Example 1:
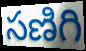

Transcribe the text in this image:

సణిగి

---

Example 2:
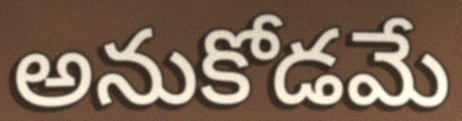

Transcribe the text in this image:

అనుకోడమే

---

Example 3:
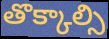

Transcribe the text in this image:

తొక్కాల్సి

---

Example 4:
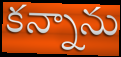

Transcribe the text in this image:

కన్నాను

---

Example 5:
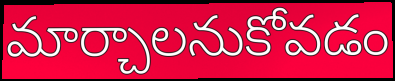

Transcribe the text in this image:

మార్చాలనుకోవడం